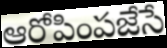
ఆరోపింపజేసే